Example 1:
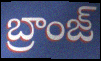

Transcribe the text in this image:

బ్రాంజ్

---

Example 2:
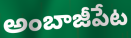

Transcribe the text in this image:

అంబాజీపేట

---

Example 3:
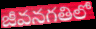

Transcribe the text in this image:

జీవనగతిలో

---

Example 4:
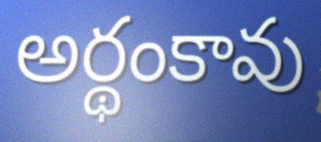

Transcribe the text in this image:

అర్థంకావు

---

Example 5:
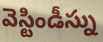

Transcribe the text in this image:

వెస్టిండీస్ను